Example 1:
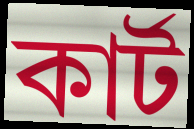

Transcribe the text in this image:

কার্ট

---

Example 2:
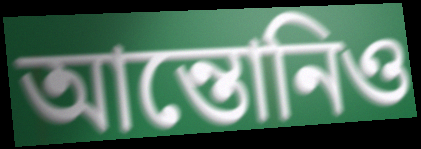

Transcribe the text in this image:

আন্তোনিও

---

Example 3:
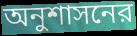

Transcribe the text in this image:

অনুশাসনের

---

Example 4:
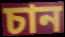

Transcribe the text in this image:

চান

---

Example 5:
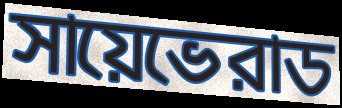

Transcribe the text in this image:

সায়েভেরাড